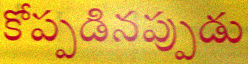
కోప్పడినప్పుడు